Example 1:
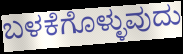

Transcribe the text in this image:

ಬಳಕೆಗೊಳ್ಳುವುದು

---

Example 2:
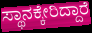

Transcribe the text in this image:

ಸ್ಥಾನಕ್ಕೇರಿದ್ದಾರೆ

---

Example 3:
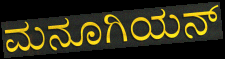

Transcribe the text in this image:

ಮನೂಗಿಯನ್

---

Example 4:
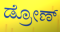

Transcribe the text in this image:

ಡ್ರೋಣ್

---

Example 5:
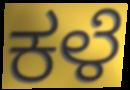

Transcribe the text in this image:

ಕಳೆ